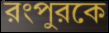
রংপুরকে